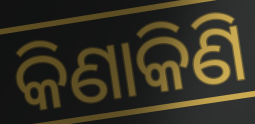
କିଣାକିଣି